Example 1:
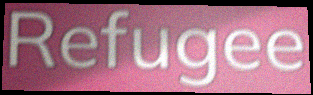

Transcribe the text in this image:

Refugee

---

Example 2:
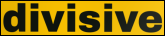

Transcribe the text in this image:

divisive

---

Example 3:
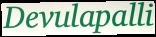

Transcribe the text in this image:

Devulapalli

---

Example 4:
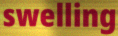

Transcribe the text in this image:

swelling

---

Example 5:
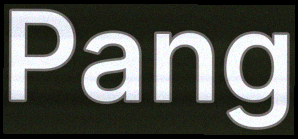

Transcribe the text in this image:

Pang